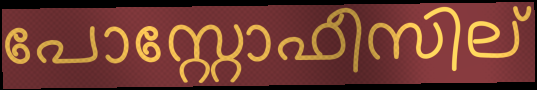
പോസ്റ്റോഫീസില്